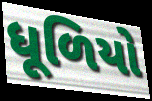
ધૂળિયો